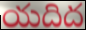
యదిద